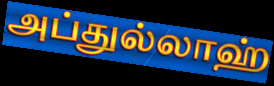
அப்துல்லாஹ்